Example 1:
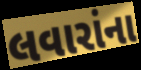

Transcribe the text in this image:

લવારાંના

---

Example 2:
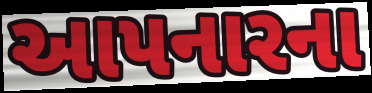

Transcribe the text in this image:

આપનારના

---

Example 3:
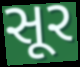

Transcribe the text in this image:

સૂર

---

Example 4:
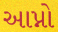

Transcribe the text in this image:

આપ્નો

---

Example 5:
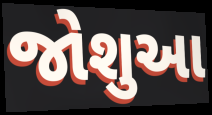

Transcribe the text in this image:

જોશુઆ